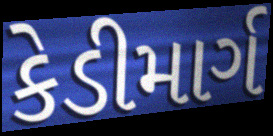
કેડીમાર્ગ